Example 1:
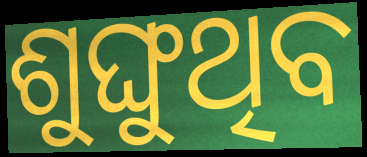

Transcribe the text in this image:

ଶୁଙ୍ଘୁଥିବ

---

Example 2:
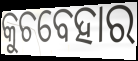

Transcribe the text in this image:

କୁଚବେହାର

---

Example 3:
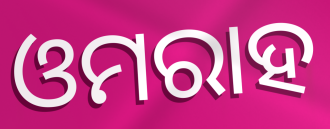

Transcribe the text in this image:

ଓମରାହ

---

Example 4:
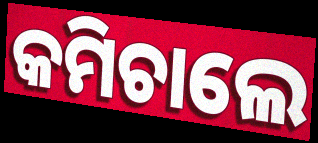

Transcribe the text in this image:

କମିଚାଲେ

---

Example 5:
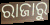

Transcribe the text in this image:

ରାଜାରୁ